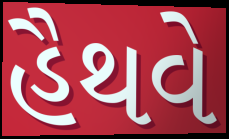
હૈથવે